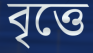
বৃত্তে